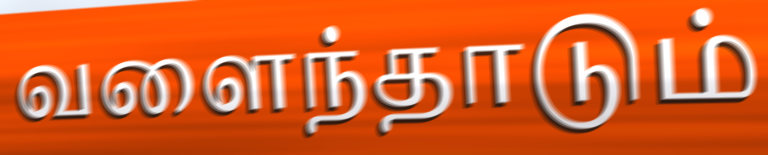
வளைந்தாடும்